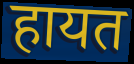
हायत